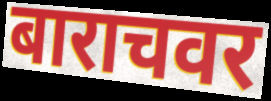
बाराचवर